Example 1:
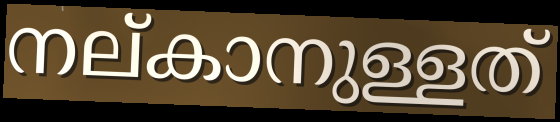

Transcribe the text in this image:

നല്കാനുള്ളത്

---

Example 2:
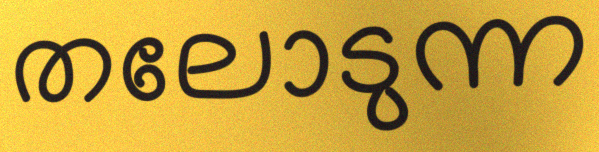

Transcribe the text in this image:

തലോടുന്ന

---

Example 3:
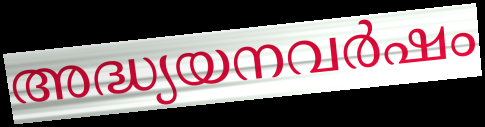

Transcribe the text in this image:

അദ്ധ്യയനവർഷം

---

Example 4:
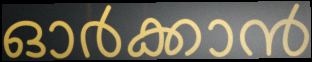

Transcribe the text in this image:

ഓർക്കാൻ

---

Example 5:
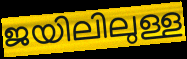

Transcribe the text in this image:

ജയിലിലുള്ള